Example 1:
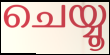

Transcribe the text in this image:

ചെയ്യൂ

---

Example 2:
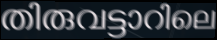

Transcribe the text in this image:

തിരുവട്ടാറിലെ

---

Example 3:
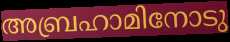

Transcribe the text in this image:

അബ്രഹാമിനോടു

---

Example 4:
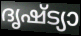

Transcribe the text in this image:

ദൃഷ്ട്യാ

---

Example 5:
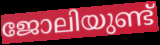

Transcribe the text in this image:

ജോലിയുണ്ട്